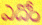
ఎదోం